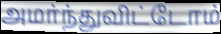
அமர்ந்துவிட்டோம்